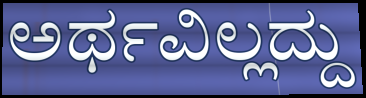
ಅರ್ಥವಿಲ್ಲದ್ದು